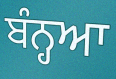
ਬੰਨ੍ਹਆ